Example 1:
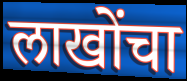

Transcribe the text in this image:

लाखोंचा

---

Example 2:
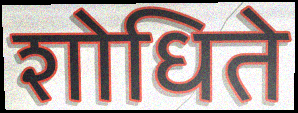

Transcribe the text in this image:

शोधिते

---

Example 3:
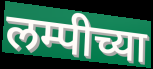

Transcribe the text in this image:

लम्पीच्या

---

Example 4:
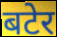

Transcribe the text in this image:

बटेर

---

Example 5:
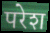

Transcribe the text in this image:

परेश